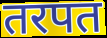
तरपत